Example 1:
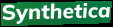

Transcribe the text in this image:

Synthetica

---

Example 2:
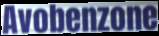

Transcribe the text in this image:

Avobenzone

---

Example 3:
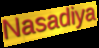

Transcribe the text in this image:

Nasadiya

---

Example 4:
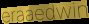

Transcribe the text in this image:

eraaedwin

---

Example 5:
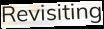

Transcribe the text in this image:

Revisiting